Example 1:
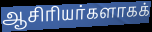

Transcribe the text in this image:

ஆசிரியர்களாகக்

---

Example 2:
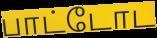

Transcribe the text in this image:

பாட்டோட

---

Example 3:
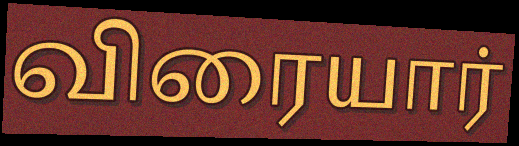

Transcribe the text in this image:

விரையார்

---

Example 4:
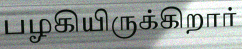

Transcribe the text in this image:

பழகியிருக்கிறார்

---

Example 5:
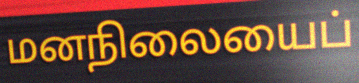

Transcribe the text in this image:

மனநிலையைப்